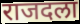
राजदला